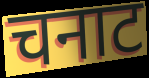
चनाट